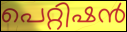
പെറ്റിഷൻ